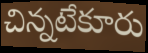
చిన్నటేకూరు